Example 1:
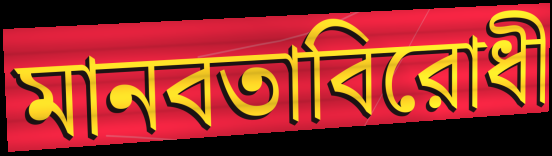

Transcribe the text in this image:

মানবতাবিরোধী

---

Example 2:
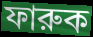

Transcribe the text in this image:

ফারুক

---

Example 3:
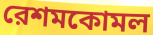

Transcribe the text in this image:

রেশমকোমল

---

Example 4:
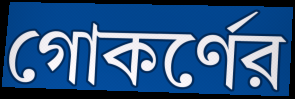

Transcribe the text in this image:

গোকর্ণের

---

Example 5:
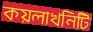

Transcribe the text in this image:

কয়লাখনিটি